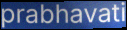
prabhavati